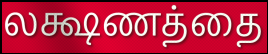
லக்ஷணத்தை